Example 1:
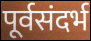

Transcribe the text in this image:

पूर्वसंदर्भ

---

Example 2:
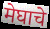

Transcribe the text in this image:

मेघाचे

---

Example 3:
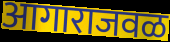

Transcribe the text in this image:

आगाराजवळ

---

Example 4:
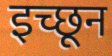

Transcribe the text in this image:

इच्छून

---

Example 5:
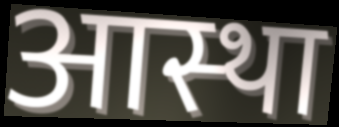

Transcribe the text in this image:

आस्था